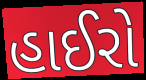
હાઈરો